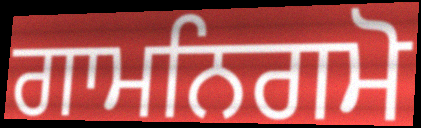
ਗਾਮਨਿਗਮੋ